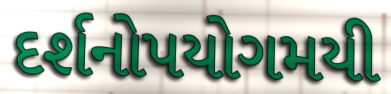
દર્શનોપયોગમયી